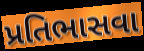
પ્રતિભાસવા